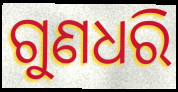
ଗୁଣଧରି